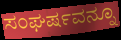
ಸಂಘರ್ಷವನ್ನೂ